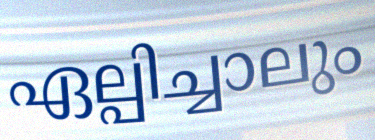
ഏല്പിച്ചാലും